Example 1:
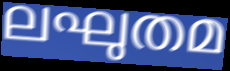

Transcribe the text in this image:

ലഘുതമ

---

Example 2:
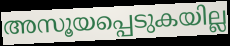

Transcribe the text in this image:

അസൂയപ്പെടുകയില്ല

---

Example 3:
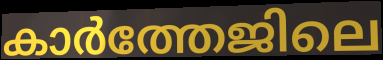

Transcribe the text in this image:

കാർത്തേജിലെ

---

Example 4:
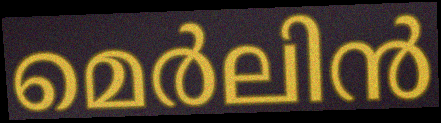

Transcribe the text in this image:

മെർലിൻ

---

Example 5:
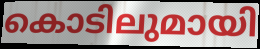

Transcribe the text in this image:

കൊടിലുമായി